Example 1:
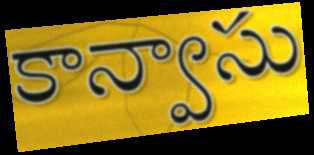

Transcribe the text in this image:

కాన్వాసు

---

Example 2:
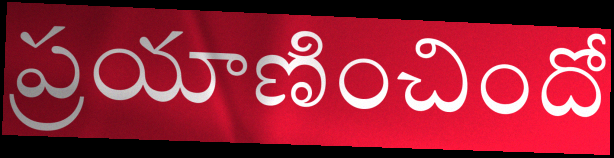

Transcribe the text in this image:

ప్రయాణించిందో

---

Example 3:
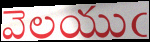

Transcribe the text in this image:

వెలయుఁ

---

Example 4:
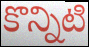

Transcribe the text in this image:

కొన్నిటి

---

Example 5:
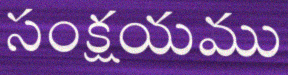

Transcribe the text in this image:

సంక్షయము